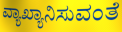
ವ್ಯಾಖ್ಯಾನಿಸುವಂತೆ